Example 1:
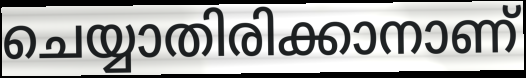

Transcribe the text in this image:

ചെയ്യാതിരിക്കാനാണ്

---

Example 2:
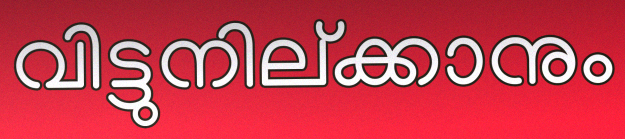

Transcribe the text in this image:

വിട്ടുനില്ക്കാനും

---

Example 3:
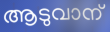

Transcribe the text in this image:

ആടുവാന്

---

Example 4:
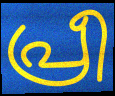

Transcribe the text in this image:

പ്രീ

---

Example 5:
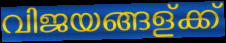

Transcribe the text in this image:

വിജയങ്ങള്ക്ക്